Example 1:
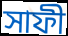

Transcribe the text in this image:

সাফী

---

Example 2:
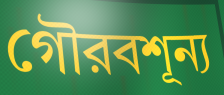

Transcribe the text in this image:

গৌরবশূন্য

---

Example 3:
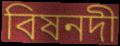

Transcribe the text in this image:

বিষনদী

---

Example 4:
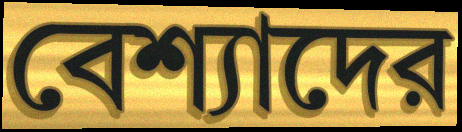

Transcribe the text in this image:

বেশ্যাদের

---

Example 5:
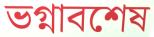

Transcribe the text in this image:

ভগ্নাবশেষ